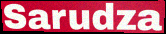
Sarudza